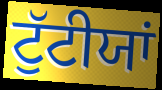
ਟੁੱਟੀਯਾਂ